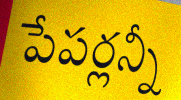
పేపర్లన్నీ